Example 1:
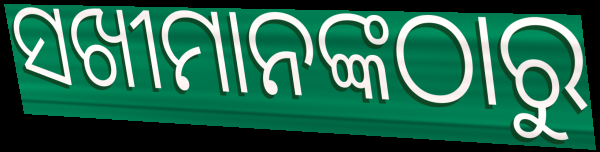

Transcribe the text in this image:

ସଖୀମାନଙ୍କଠାରୁ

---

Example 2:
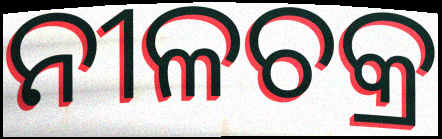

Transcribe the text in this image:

ନୀଳଚକ୍ର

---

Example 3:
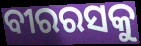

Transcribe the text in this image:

ବୀରରସକୁ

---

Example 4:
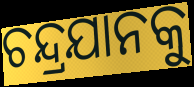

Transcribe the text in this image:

ଚନ୍ଦ୍ରଯାନକୁ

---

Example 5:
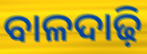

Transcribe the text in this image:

ବାଳଦାଢ଼ି